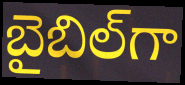
బైబిల్‌గా